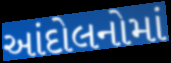
આંદોલનોમાં